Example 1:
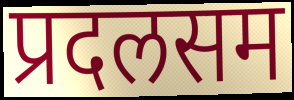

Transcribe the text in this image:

प्रदलसम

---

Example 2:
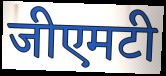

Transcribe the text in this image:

जीएमटी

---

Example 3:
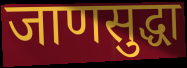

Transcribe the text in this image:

जाणसुद्धा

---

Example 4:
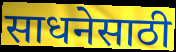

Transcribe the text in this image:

साधनेसाठी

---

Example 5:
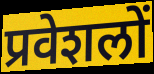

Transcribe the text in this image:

प्रवेशलों